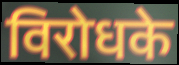
विरोधके